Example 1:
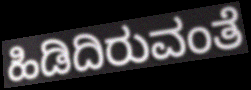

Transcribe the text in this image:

ಹಿಡಿದಿರುವಂತೆ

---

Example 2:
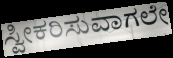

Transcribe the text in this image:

ಸ್ವೀಕರಿಸುವಾಗಲೇ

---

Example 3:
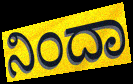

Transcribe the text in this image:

ನಿಂದಾ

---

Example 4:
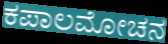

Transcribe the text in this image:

ಕಪಾಲಮೋಚನ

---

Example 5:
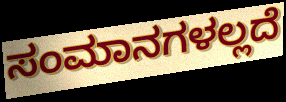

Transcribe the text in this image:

ಸಂಮಾನಗಳಲ್ಲದೆ